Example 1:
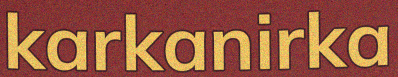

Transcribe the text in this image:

karkanirka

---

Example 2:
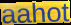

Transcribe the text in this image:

aahot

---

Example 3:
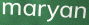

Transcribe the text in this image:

maryan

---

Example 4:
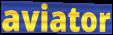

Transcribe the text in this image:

aviator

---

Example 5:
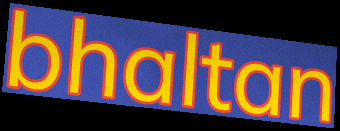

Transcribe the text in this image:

bhaltan